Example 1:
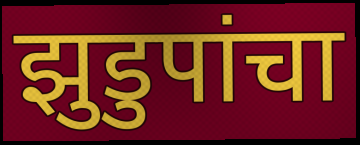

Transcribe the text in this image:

झुडुपांचा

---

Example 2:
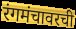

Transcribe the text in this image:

रंगमंचावरची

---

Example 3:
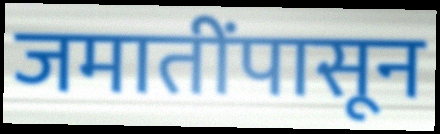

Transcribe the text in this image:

जमातींपासून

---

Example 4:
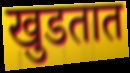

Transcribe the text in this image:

खुडतात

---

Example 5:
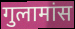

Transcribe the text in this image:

गुलामांस